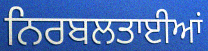
ਨਿਰਬਲਤਾਈਆਂ